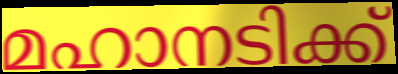
മഹാനടിക്ക്